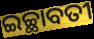
ଇଚ୍ଛାବତୀ